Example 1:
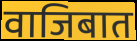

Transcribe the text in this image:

वाजिबात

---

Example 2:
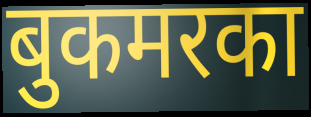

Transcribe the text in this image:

बुकमरका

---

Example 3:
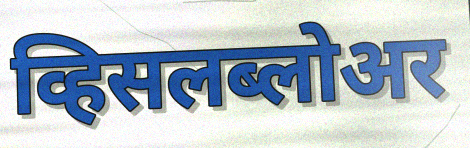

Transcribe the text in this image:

व्हिसलब्लोअर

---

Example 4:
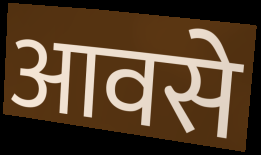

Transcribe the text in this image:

आवसे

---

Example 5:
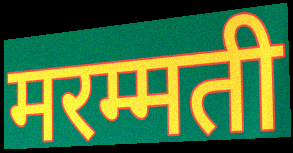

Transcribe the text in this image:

मरम्मती